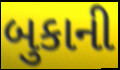
બુકાની